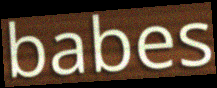
babes